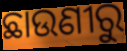
ଛାଉଣୀରୁ